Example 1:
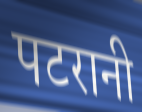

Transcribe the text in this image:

पटरानी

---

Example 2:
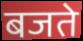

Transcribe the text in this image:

बजते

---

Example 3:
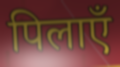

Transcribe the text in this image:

पिलाएँ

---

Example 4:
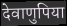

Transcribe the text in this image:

देवाणुपिया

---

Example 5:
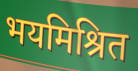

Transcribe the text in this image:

भयमिश्रित